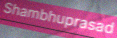
Shambhuprasad